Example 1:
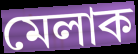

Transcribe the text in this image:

মেলাক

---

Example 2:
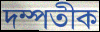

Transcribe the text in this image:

দম্পতীক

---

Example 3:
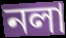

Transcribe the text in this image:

নলা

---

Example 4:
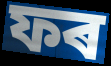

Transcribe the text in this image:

ফৰ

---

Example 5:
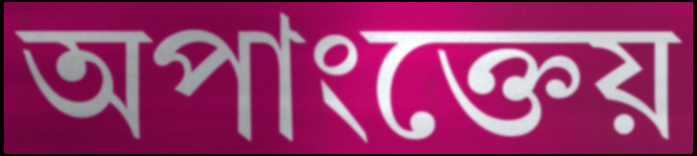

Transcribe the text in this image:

অপাংক্তেয়